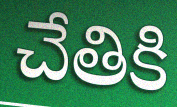
చేతికి